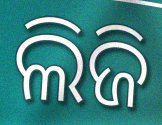
ଲିଜି